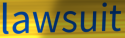
lawsuit